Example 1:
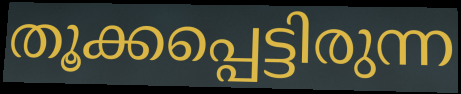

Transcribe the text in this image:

തൂക്കപ്പെട്ടിരുന്ന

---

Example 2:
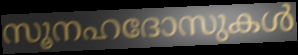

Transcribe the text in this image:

സൂനഹദോസുകൾ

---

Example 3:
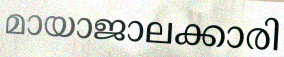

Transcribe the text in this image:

മായാജാലക്കാരി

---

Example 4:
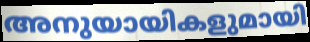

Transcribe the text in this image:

അനുയായികളുമായി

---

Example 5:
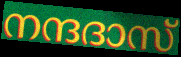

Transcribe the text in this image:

നന്ദദാസ്